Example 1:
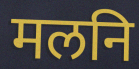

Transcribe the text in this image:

मलनि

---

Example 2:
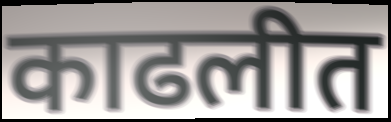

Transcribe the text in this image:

काढलीत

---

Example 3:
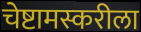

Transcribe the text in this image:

चेष्टामस्करीला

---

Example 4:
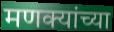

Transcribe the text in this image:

मणक्यांच्या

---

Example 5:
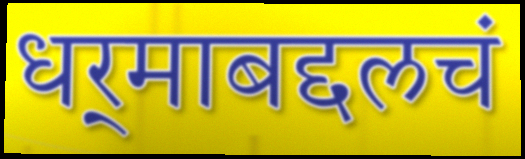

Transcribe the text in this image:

धर्माबद्दलचं